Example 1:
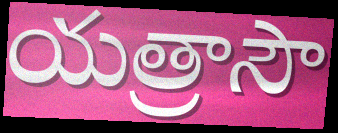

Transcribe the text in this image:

యత్రాసౌ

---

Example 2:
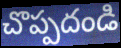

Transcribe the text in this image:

చొప్పదండి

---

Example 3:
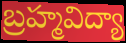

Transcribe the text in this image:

బ్రహ్మవిద్యా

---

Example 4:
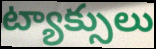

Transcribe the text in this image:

ట్యాక్సులు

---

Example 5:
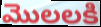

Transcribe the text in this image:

మొలలకి